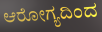
ಆರೋಗ್ಯದಿಂದ